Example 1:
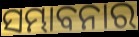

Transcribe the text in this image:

ସମ୍ଭାବନାର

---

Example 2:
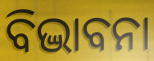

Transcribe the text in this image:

ବିଦ୍ଭାବନା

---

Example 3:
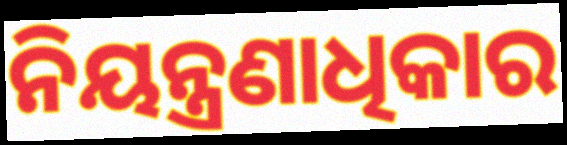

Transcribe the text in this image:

ନିୟନ୍ତ୍ରଣାଧିକାର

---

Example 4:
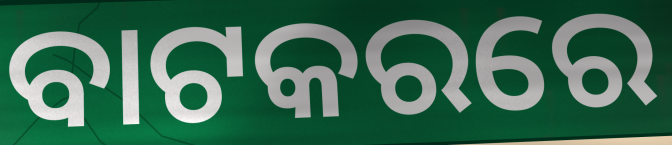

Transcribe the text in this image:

ବାଟକରରେ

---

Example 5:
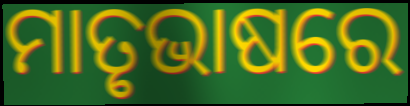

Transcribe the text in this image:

ମାତୃଭାଷରେ